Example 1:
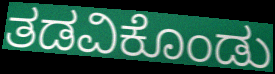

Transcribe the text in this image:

ತಡವಿಕೊಂಡು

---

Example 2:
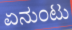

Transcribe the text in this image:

ಏನುಂಟು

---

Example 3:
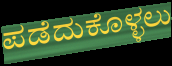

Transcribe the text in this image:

ಪಡೆದುಕೊಳ್ಳಲು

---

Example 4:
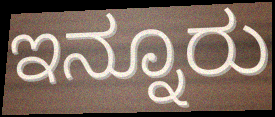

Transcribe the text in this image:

ಇನ್ನೂರು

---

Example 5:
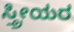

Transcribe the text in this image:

ಸ್ತ್ರೀಯರ